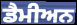
ਡੈਮੀਅਨ